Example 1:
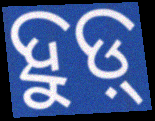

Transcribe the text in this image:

ହୁଡ଼୍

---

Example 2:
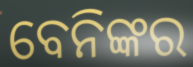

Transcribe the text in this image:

ବେନିଙ୍କର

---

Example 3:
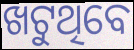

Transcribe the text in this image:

ଖଟୁଥିବେ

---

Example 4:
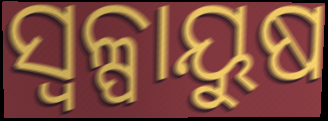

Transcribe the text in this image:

ସ୍ୱଳ୍ପାୟୁଷ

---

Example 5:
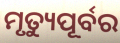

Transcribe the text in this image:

ମୃତ୍ୟୁପୂର୍ବର